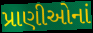
પ્રાણીઓનાં